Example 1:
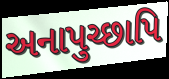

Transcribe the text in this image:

અનાપુચ્છાપિ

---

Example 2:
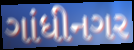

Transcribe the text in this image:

ગાંધીનગર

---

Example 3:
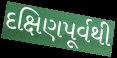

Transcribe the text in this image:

દક્ષિણપૂર્વથી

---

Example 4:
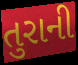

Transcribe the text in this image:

તુરાની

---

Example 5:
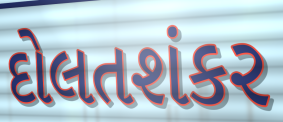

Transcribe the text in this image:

દોલતશંકર